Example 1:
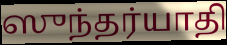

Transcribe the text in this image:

ஸுந்தர்யாதி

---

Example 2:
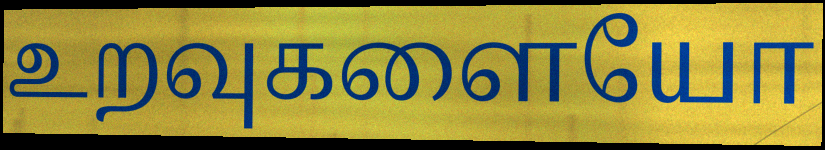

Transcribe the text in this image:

உறவுகளையோ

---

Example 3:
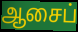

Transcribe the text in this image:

ஆசைப்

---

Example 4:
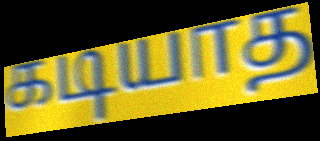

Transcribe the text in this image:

கடியாத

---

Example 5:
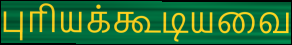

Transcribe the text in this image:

புரியக்கூடியவை